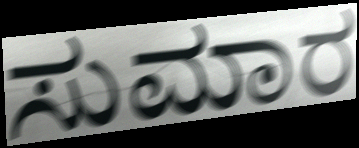
ಸುಮಾರ